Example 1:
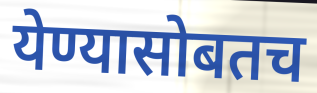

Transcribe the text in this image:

येण्यासोबतच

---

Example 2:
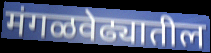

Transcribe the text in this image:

मंगळवेढ्यातील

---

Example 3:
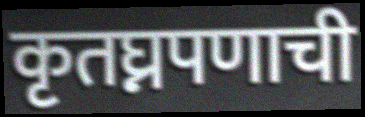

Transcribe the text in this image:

कृतघ्नपणाची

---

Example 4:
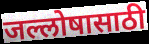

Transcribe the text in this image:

जल्लोषासाठी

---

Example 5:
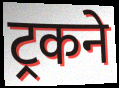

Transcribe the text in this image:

ट्रकने